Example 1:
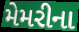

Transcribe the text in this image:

મેમરીના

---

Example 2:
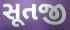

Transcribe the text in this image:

સૂતજી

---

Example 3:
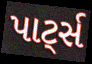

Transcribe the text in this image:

પાર્ટ્સ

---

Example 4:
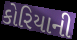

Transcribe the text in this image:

કોરિયાની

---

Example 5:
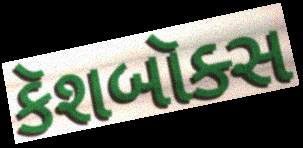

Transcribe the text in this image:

કૅશબૉક્સ